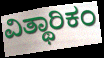
ವಿತ್ಥಾರಿಕಂ